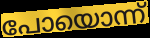
പോയൊന്ന്